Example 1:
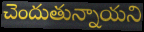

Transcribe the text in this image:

చెందుతున్నాయని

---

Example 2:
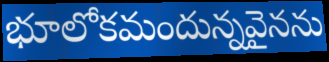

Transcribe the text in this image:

భూలోకమందున్నవైనను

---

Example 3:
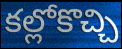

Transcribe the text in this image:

కల్లోకొచ్చి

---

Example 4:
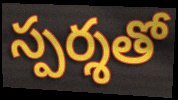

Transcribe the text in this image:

స్పర్శతో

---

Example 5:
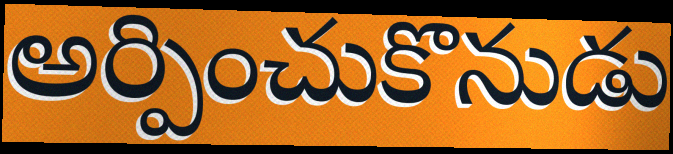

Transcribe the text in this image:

అర్పించుకొనుడు